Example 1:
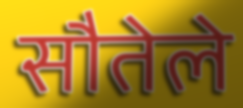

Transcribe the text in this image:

सौतेले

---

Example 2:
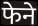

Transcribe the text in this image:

फेने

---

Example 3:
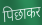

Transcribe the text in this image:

पिछाकर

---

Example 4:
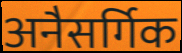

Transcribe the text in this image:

अनैसर्गिक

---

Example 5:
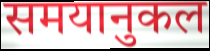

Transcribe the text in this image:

समयानुकल